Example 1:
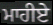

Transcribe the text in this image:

ਮਾਹੀਏ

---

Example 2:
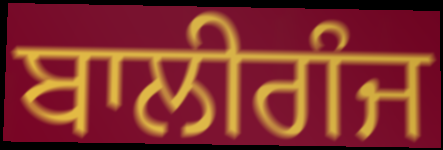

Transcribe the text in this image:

ਬਾਲੀਗੰਜ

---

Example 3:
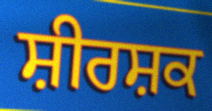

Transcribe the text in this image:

ਸ਼ੀਰਸ਼ਕ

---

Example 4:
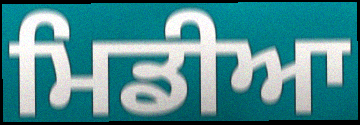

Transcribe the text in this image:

ਮਿਡੀਆ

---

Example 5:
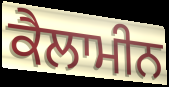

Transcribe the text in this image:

ਕੈਲਾਮੀਨ